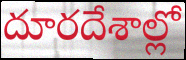
దూరదేశాల్లో